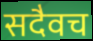
सदैवच